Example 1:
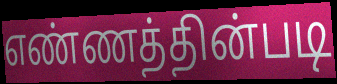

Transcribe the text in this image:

எண்ணத்தின்படி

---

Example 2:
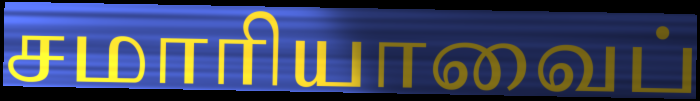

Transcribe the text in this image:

சமாரியாவைப்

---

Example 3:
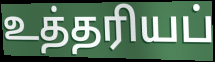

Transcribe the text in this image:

உத்தரியப்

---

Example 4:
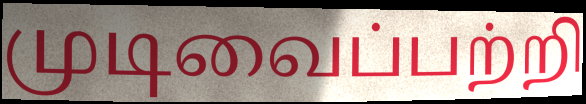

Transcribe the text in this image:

முடிவைப்பற்றி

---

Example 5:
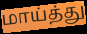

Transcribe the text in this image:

மாய்த்து